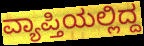
ವ್ಯಾಪ್ತಿಯಲ್ಲಿದ್ದ